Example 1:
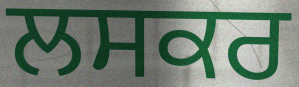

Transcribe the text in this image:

ਲਸਕਰ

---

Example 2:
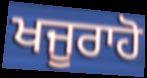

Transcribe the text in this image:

ਖਜੂਰਾਹੋ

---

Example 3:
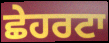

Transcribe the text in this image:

ਛੇਹਰਟਾ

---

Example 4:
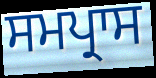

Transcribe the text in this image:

ਸਮਪ੍ਰਾਸ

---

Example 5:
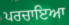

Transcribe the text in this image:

ਪਰਚਾਇਆ